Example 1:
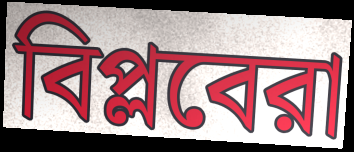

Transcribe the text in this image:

বিপ্লবেরা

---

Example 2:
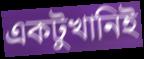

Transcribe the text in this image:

একটুখানিই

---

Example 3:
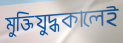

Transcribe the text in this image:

মুক্তিযুদ্ধকালেই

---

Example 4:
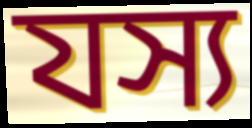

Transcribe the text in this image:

যস্য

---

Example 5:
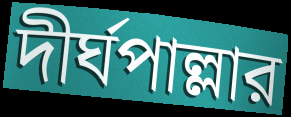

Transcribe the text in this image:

দীর্ঘপাল্লার